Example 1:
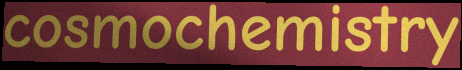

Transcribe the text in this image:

cosmochemistry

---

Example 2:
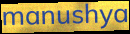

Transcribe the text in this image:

manushya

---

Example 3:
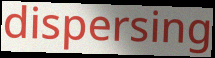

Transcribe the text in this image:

dispersing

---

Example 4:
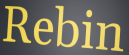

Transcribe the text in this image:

Rebin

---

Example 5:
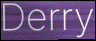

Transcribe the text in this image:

Derry